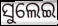
ସୁଲେଇ